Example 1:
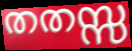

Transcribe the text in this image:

തതസ്സ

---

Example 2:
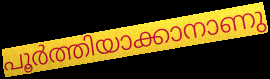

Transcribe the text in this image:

പൂർത്തിയാക്കാനാണു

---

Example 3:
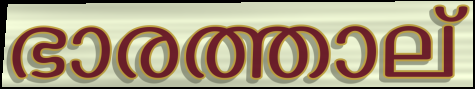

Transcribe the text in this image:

ഭാരത്താല്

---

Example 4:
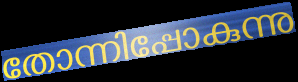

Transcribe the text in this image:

തോന്നിപ്പോകുന്നു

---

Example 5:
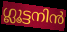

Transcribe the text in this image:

ഗ്ലൂട്ടനിൻ